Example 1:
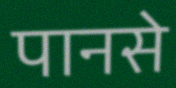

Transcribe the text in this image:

पानसे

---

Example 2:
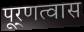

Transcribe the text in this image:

पूर्णत्वास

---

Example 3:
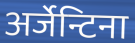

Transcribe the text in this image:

अर्जेन्टिना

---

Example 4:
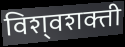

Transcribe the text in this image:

विश्वशक्ती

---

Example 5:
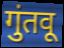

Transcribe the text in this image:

गुंतवू